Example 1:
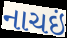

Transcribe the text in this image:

નાચઇં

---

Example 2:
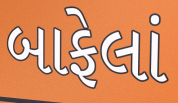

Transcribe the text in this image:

બાફેલાં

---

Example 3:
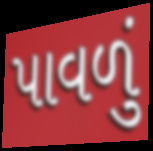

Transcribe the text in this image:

પાવળું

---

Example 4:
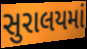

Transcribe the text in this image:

સુરાલયમાં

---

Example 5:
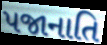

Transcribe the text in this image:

પજાનાતિ